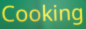
Cooking